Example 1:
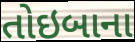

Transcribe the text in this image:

તોઇબાના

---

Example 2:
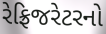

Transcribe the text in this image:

રેફ્રિજરેટરનો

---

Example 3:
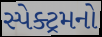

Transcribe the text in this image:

સ્પેક્ટ્રમનો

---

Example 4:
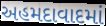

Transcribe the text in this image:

અહમદાવાદમાં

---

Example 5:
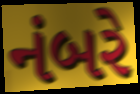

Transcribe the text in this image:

નંબરે